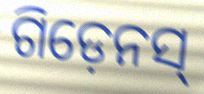
ଗିଡ଼େନସ୍